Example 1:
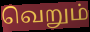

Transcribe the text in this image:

வெறும்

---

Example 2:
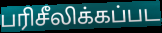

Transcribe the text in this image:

பரிசீலிக்கப்பட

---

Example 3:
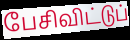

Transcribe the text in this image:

பேசிவிட்டுப்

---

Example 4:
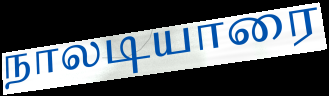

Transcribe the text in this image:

நாலடியாரை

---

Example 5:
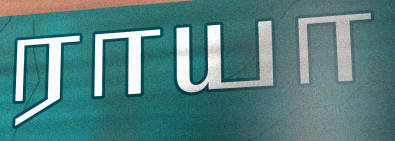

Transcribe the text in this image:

ராயா